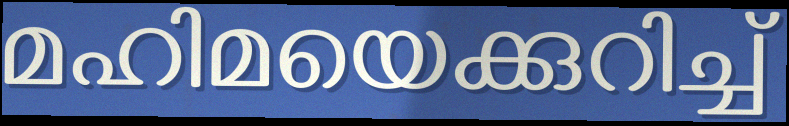
മഹിമയെക്കുറിച്ച്